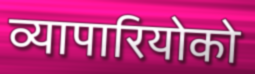
व्यापारियोको